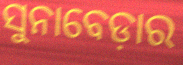
ସୁନାବେଡ଼ାର